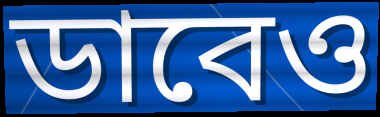
ডাবেও